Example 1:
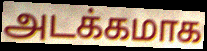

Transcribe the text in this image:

அடக்கமாக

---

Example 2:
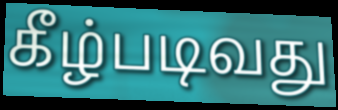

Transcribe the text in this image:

கீழ்படிவது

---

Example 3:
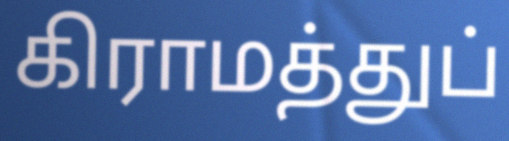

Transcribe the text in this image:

கிராமத்துப்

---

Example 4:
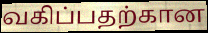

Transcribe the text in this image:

வகிப்பதற்கான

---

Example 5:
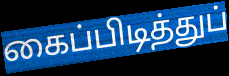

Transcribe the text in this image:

கைப்பிடித்துப்